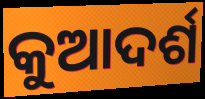
କୁଆଦର୍ଶ